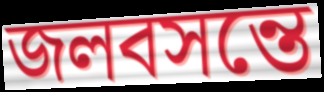
জলবসন্তে